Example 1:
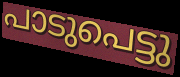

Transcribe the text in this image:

പാടുപെട്ടു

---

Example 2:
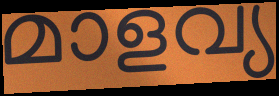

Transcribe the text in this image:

മാളവ്യ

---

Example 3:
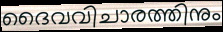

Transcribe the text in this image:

ദൈവവിചാരത്തിനും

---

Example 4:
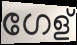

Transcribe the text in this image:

ഗേള്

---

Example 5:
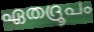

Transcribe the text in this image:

ഏതദ്രൂപം